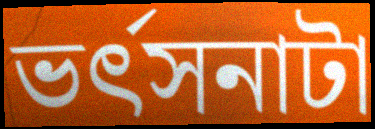
ভর্ৎসনাটা